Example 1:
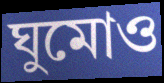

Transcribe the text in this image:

ঘুমোও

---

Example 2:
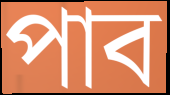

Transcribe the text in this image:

পাব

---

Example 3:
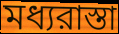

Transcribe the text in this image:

মধ্যরাস্তা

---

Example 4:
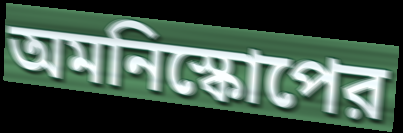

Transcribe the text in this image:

অমনিস্কোপের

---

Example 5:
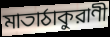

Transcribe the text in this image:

মাতাঠাকুরাণী